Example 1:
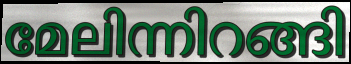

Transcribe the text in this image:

മേലിന്നിറങ്ങി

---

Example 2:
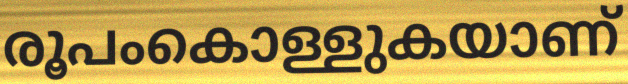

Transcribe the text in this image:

രൂപംകൊള്ളുകയാണ്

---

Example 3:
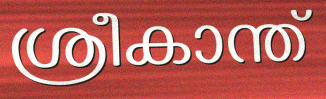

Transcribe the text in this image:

ശ്രീകാന്ത്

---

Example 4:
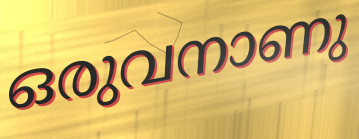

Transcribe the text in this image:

ഒരുവനാണു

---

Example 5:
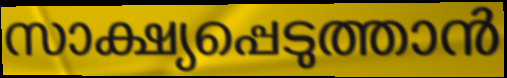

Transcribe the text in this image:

സാക്ഷ്യപ്പെടുത്താൻ